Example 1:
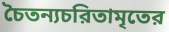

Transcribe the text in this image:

চৈতন্যচরিতামৃতের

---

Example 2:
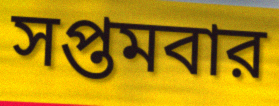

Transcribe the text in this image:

সপ্তমবার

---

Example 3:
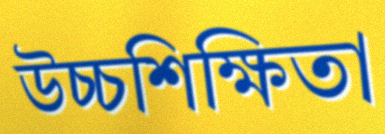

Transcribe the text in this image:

উচ্চশিক্ষিতা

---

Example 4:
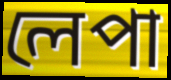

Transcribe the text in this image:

লেপা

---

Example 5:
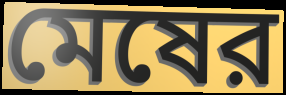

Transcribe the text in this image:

মেষের